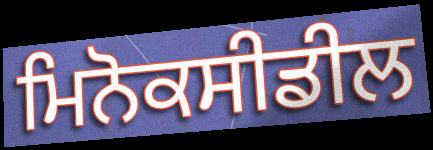
ਮਿਨੋਕਸੀਡੀਲ